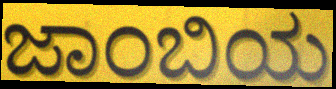
ಜಾಂಬಿಯ